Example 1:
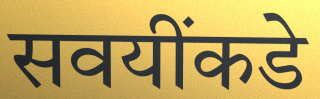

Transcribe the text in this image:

सवयींकडे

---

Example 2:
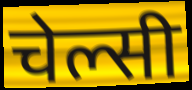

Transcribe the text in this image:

चेल्सी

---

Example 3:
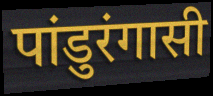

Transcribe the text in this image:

पांडुरंगासी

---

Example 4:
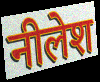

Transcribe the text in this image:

नीलेश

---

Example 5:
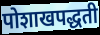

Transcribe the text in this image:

पोशाखपद्धती